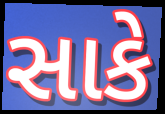
સાકે